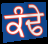
ਕੰਢੇ